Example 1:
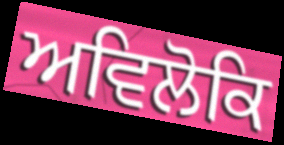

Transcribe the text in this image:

ਅਵਿਲੋਕਿ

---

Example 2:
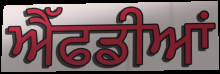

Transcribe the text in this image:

ਐੱਫਡੀਆਂ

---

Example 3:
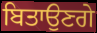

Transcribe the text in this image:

ਬਿਤਾਉਣਗੇ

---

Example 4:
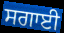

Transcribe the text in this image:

ਸਗਾਈ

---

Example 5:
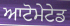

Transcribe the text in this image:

ਆਟੋਮੇਟੇਡ